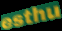
esthu